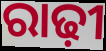
ରାଢ଼ୀ